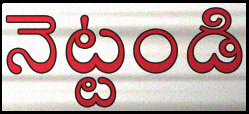
నెట్టండి